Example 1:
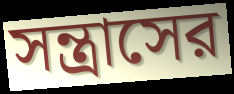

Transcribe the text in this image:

সন্ত্রাসের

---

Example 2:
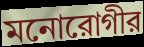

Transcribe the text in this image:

মনোরোগীর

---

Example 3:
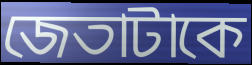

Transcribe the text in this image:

জেতাটাকে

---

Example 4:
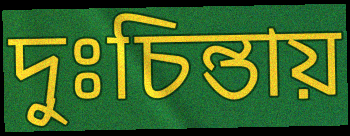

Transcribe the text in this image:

দুঃচিন্তায়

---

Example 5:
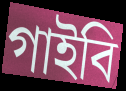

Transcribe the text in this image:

গাইবি